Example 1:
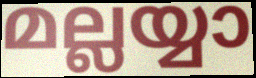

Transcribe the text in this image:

മല്ലയ്യാ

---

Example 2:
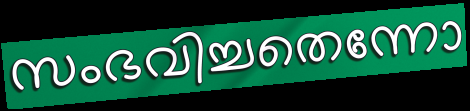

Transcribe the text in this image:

സംഭവിച്ചതെന്നോ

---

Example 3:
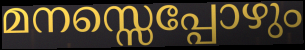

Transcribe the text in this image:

മനസ്സെപ്പോഴും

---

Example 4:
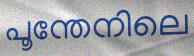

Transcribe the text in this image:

പൂന്തേനിലെ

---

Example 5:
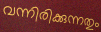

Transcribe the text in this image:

വന്നിരിക്കുന്നതും